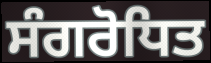
ਸੰਗਰੋਧਿਤ